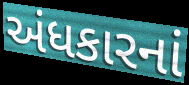
અંધકારનાં